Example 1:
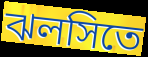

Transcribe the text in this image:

ঝলসিতে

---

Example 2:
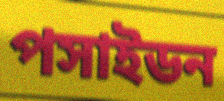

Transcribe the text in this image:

পসাইডন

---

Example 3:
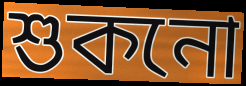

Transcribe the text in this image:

শুকনো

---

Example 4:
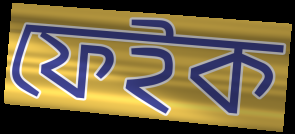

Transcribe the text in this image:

ফেইক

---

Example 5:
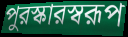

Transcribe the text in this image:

পুরস্কারস্বরূপ